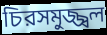
চিরসমুজ্জ্বল